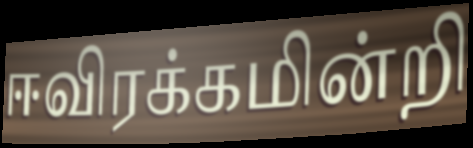
ஈவிரக்கமின்றி